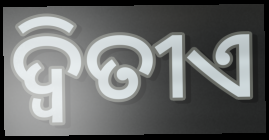
ଦ୍ୱିତୀଏ